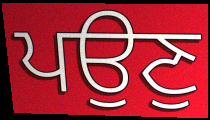
ਪਉਣੁ